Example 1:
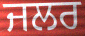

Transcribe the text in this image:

ਜਲਰ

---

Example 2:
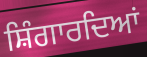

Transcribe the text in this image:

ਸ਼ਿੰਗਾਰਦਿਆਂ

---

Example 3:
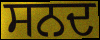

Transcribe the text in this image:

ਸਨਦ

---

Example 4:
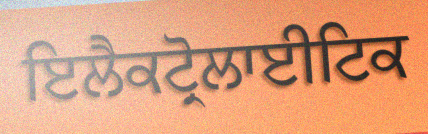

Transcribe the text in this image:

ਇਲੈਕਟ੍ਰੋਲਾਈਟਿਕ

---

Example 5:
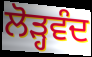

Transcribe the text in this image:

ਲੋੜ੍ਹਵੰਦ